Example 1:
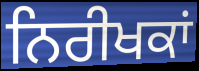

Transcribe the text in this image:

ਨਿਰੀਖਕਾਂ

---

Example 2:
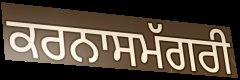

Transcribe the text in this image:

ਕਰਨਾਸਮੱਗਰੀ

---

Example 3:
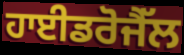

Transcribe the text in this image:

ਹਾਈਡਰੋਜੈੱਲ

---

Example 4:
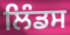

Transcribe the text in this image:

ਲਿੰਡਸ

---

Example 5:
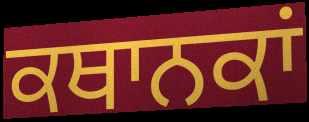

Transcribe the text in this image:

ਕਥਾਨਕਾਂ